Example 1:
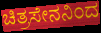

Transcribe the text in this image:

ಚಿತ್ರಸೇನನಿಂದ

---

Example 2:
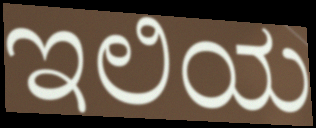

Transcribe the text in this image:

ಇಲಿಯ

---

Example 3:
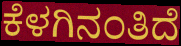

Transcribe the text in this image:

ಕೆಳಗಿನಂತಿದೆ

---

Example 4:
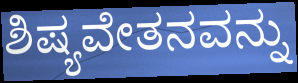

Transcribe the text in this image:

ಶಿಷ್ಯವೇತನವನ್ನು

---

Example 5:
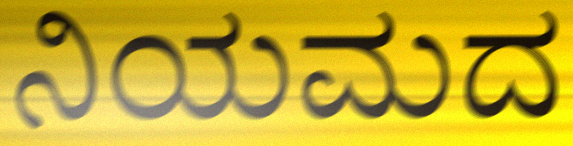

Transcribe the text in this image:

ನಿಯಮದ